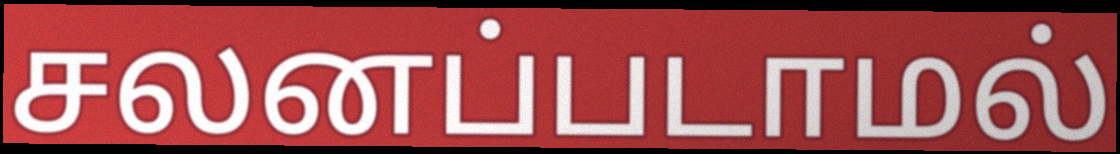
சலனப்படாமல்